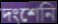
দংশেনি